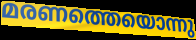
മരണത്തെയൊന്നു